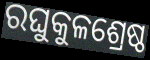
ରଘୁକୁଳଶ୍ରେଷ୍ଠ